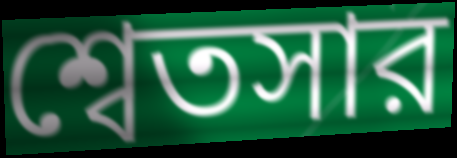
শ্বেতসার